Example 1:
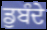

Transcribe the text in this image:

ਡੁਬੰਦੇ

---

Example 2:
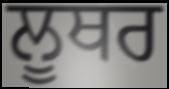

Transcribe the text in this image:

ਲੂਥਰ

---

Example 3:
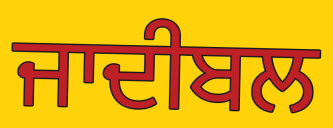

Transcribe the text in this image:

ਜਾਦੀਬਲ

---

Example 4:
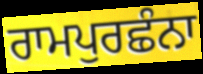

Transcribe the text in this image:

ਰਾਮਪੁਰਛੰਨਾ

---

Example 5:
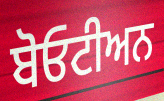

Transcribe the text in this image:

ਬੋਓਟੀਅਨ